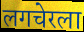
लगचेरला